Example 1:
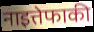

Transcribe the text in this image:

नाइत्तेफाकी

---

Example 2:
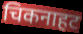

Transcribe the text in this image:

चिकनाहट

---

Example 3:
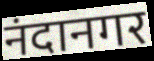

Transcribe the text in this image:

नंदानगर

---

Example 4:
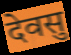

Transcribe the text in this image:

देवसु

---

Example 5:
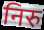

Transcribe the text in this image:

निरु